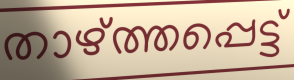
താഴ്ത്തപ്പെട്ട്